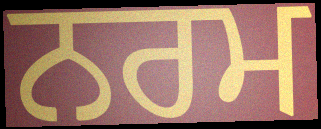
ਨਰਮ